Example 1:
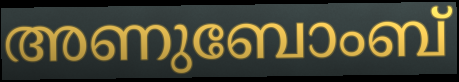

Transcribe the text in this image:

അണുബോംബ്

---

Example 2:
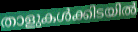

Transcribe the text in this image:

താളുകൾക്കിടയിൽ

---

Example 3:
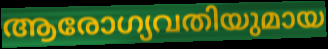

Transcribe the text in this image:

ആരോഗ്യവതിയുമായ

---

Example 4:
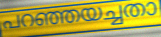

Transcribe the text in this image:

പറഞ്ഞയച്ചതാ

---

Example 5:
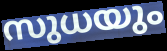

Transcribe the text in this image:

സുധയും